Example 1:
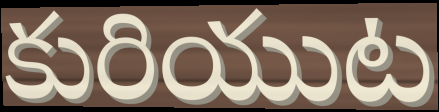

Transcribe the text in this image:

కురియుట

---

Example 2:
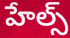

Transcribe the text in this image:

హేల్స్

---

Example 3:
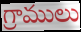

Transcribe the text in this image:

గ్రాములు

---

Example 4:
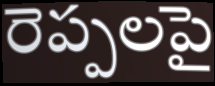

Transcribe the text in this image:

రెప్పలపై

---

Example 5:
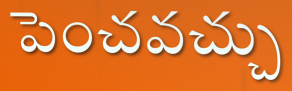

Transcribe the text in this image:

పెంచవచ్చు